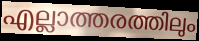
എല്ലാത്തരത്തിലും